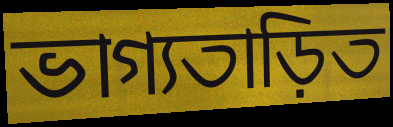
ভাগ্যতাড়িত